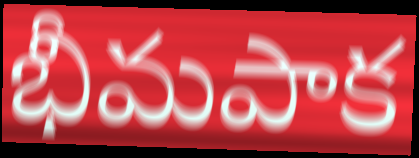
భీమపాక